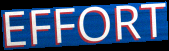
EFFORT